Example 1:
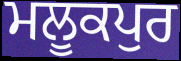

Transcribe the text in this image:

ਮਲੂਕਪੁਰ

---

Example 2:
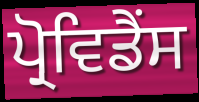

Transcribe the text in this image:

ਪ੍ਰੋਵਿਡੈਂਸ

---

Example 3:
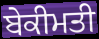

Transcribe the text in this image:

ਬੇਕੀਮਤੀ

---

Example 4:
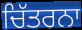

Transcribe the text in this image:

ਚਿੱਤਰਨਾ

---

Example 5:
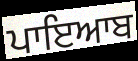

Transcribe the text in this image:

ਪਾਇਆਬ